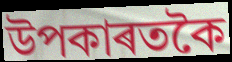
উপকাৰতকৈ